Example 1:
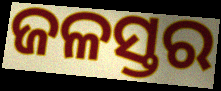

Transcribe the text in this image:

ଜଳସ୍ତର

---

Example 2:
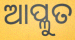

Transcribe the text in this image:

ଆପ୍ଳୁତ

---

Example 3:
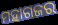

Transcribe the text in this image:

ମହାଗଜର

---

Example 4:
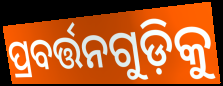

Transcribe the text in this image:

ପ୍ରବର୍ତ୍ତନଗୁଡ଼ିକୁ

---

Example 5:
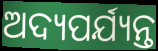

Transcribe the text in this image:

ଅଦ୍ୟପର୍ଯ୍ୟନ୍ତ